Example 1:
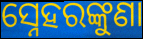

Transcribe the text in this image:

ସ୍ନେହରଙ୍କୁଣା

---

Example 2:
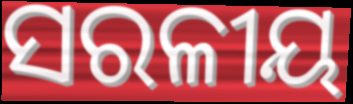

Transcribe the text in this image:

ସରଳୀୟ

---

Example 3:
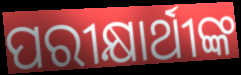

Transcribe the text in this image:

ପରୀକ୍ଷାର୍ଥୀଙ୍କ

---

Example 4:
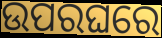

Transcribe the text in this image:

ଉପରଘରେ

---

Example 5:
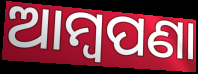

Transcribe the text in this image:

ଆମ୍ବପଣା